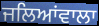
ਜਲਿਆਂਵਾਲਾ